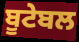
ਬੂਟੇਬਲ